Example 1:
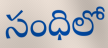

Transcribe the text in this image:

సంధిలో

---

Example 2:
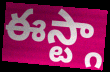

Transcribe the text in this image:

ఈస్ట్గా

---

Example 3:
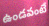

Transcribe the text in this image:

ఉండవంటే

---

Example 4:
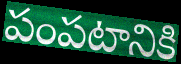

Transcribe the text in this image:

పంపటానికి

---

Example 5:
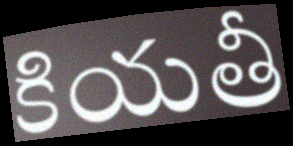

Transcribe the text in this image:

కియతీ